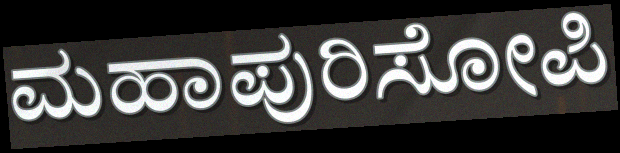
ಮಹಾಪುರಿಸೋಪಿ